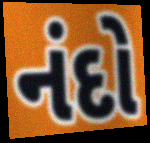
નંદો